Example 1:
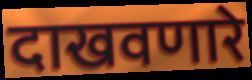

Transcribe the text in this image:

दाखवणारे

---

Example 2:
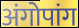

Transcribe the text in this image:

अंगोपांग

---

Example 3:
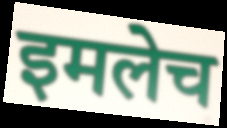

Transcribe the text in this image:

इमलेच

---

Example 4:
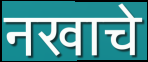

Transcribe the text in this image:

नखाचे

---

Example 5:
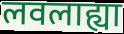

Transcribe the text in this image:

लवलाह्या